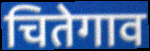
चितेगाव